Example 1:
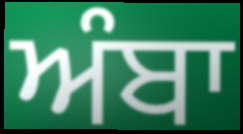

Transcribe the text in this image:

ਅੰਬਾ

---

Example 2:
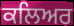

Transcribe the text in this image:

ਕਲਿਅਰ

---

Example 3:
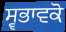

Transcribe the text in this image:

ਸ੍ਵਭਾਵਕੋ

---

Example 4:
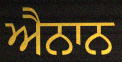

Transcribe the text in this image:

ਐਨਾਨ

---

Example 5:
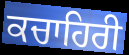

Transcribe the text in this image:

ਕਚਾਹਿਰੀ